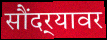
सौंदर्यावर